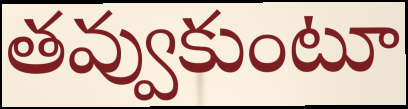
తవ్వుకుంటూ